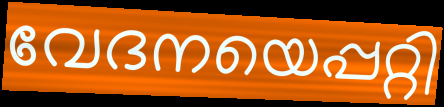
വേദനയെപ്പറ്റി